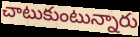
చాటుకుంటున్నారు